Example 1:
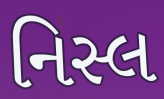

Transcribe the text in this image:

નિસ્લ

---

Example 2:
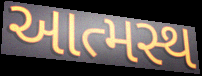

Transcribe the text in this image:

આત્મસ્થ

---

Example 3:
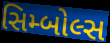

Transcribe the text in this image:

સિમ્બોલ્સ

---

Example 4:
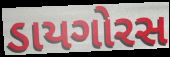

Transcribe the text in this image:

ડાયગોરસ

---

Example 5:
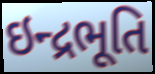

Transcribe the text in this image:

ઇન્દ્રભૂતિ